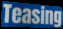
Teasing